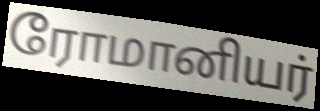
ரோமானியர்